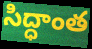
సిద్ధాంత